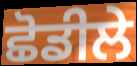
ਛੋਡੀਲੇ